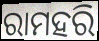
ରାମହରି